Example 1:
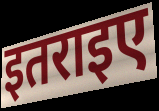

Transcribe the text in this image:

इतराइए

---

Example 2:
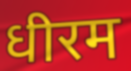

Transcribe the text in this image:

धीरम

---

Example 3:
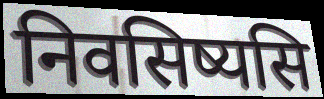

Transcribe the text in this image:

निवसिष्यसि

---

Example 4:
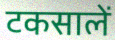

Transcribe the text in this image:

टकसालें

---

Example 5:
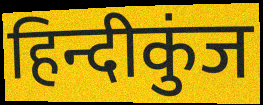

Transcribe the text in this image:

हिन्दीकुंज